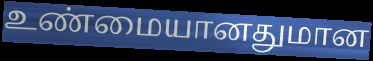
உண்மையானதுமான